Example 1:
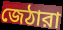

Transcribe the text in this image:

জেঠারা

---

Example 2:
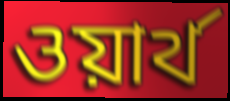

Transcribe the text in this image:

ওয়ার্থ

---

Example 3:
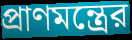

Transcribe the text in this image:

প্রাণমন্ত্রের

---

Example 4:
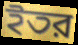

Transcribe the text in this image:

ইতর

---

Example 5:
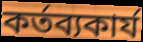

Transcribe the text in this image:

কর্তব্যকার্য